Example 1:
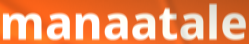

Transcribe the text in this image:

manaatale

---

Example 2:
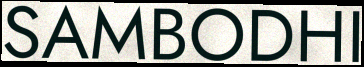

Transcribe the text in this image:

SAMBODHI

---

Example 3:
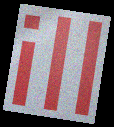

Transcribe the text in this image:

ill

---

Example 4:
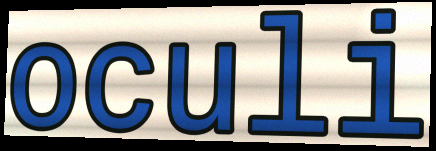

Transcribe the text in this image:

oculi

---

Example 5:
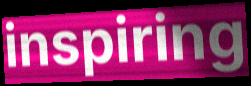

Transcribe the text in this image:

inspiring